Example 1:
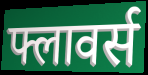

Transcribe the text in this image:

फ्लावर्स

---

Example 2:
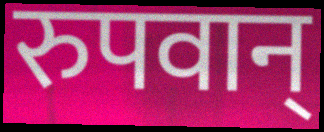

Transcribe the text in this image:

रुपवान्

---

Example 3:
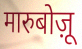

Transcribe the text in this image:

मारुबोज़ू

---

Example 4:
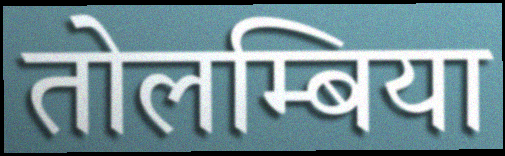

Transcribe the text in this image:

तोलम्बिया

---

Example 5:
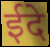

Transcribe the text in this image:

ईदे